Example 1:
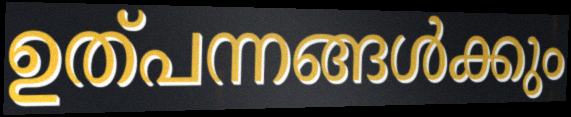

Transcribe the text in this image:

ഉത്പന്നങ്ങൾക്കും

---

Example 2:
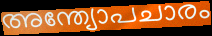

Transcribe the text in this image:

അന്ത്യോപചാരം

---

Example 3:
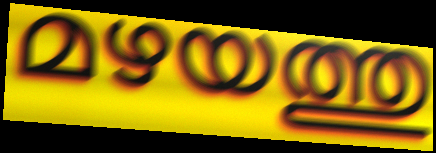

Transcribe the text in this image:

മഴയത്തു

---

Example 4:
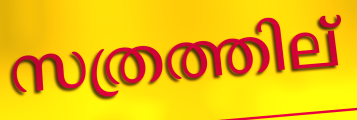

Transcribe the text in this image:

സത്രത്തില്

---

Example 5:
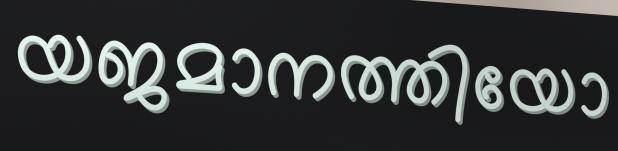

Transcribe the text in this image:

യജമാനത്തിയോ